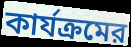
কার্যক্রমের